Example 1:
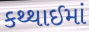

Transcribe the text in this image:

કથ્થાઈમાં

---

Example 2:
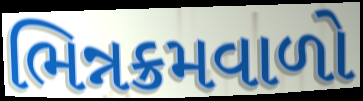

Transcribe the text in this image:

ભિન્નક્રમવાળો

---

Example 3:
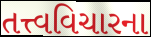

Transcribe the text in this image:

તત્ત્વવિચારના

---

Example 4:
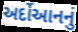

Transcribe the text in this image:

અર્દોઆનનું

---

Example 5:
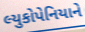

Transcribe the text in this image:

લ્યુકોપેનિયાને